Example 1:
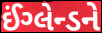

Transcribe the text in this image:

ઈંગ્લેન્ડને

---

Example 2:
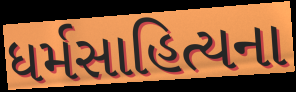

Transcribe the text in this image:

ધર્મસાહિત્યના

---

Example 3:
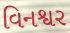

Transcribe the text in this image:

વિનશ્વર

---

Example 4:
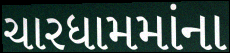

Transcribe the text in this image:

ચારધામમાંના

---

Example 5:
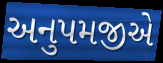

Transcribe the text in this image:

અનુપમજીએ